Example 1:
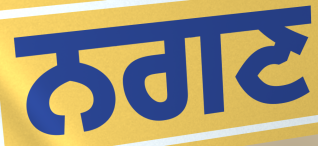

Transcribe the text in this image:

ਨਗਣ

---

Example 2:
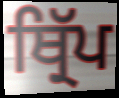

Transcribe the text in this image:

ਥ੍ਰਿੱਪ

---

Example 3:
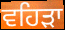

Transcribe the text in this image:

ਵਹਿੜਾ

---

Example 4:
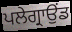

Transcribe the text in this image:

ਪਲੇਗ੍ਰਾਉਂਡ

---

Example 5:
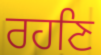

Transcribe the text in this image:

ਰਹਣਿ